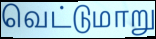
வெட்டுமாறு